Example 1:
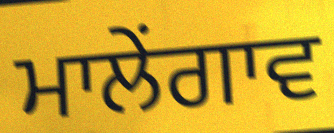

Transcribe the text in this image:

ਮਾਲੇਂਗਾਵ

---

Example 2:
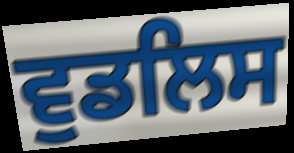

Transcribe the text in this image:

ਵੁਡਲਿਸ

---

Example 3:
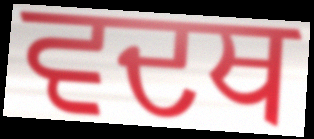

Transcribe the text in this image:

ਵਦਥ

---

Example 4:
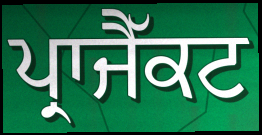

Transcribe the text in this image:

ਪ੍ਰਾਜੈੱਕਟ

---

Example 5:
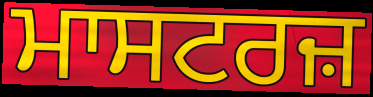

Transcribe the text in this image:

ਮਾਸਟਰਜ਼